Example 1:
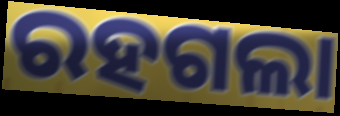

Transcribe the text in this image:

ରହଗଲା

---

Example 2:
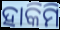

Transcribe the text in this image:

ହାକିମି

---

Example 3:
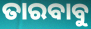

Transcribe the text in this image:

ତାରବାବୁ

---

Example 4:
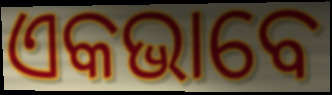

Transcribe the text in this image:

ଏକଭାବେ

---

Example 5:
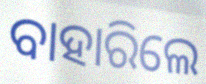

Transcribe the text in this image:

ବାହାରିଲେ